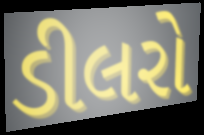
ડીલરો